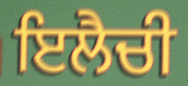
ਇਲੈਚੀ